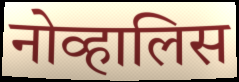
नोव्हालिस